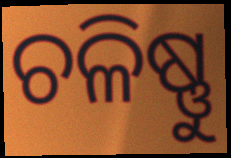
ଚଳିଷ୍ଣୁ